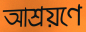
আশ্রয়ণে